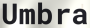
Umbra